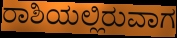
ರಾಶಿಯಲ್ಲಿರುವಾಗ